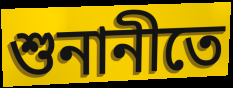
শুনানীতে